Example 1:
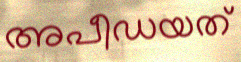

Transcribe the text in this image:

അപീഡയത്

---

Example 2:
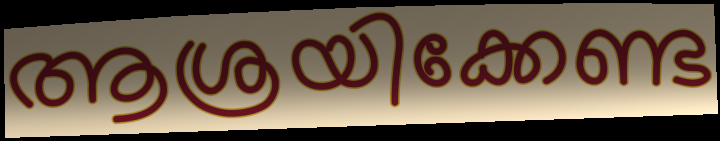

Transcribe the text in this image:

ആശ്രയിക്കേണ്ട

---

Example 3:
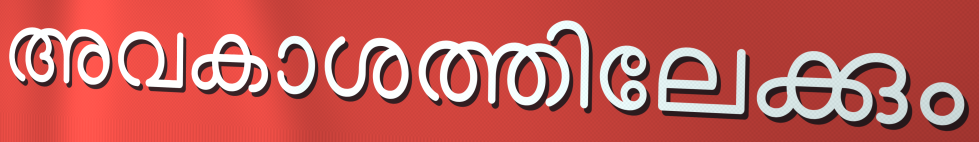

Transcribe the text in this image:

അവകാശത്തിലേക്കും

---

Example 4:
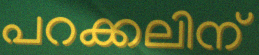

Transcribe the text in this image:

പറക്കലിന്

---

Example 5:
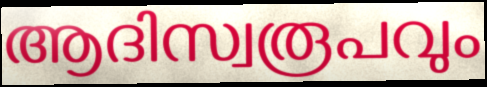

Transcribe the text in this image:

ആദിസ്വരൂപവും